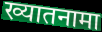
ख्यातनामा